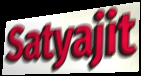
Satyajit